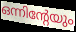
ഒന്നിന്റേയും